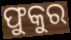
ଫୁକୁର